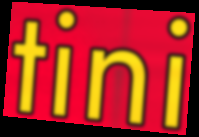
tini